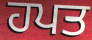
ਹਪਤ